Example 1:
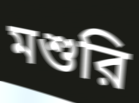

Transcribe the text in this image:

মশুরি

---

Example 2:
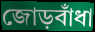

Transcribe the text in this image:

জোড়বাঁধা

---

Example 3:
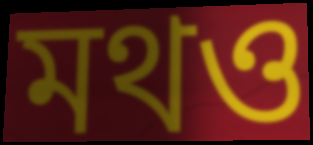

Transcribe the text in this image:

মথও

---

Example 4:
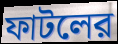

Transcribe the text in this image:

ফাটলের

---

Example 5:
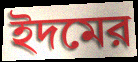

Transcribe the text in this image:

ইদমের